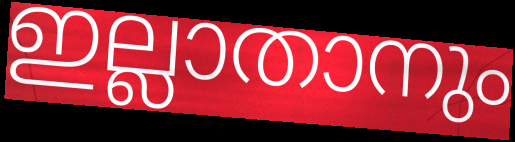
ഇല്ലാതാനും